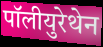
पॉलीयुरेथेन